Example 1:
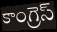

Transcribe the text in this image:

కాంగ్రెస్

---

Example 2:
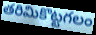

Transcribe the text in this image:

తరిమికొట్టగలం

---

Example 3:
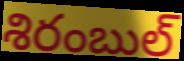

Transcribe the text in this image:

శిరంబుల్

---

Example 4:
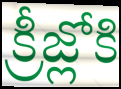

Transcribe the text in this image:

క్రీజ్లోకి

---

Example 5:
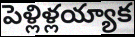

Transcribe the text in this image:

పెళ్లిళ్లయ్యాక